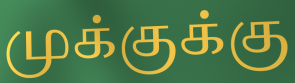
முக்குக்கு